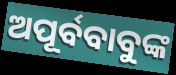
ଅପୂର୍ବବାବୁଙ୍କ